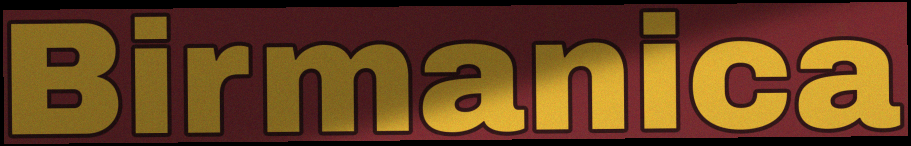
Birmanica